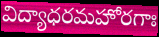
విద్యాధరమహోరగాః